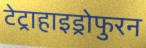
टेट्राहाइड्रोफुरन